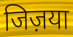
जिज़या